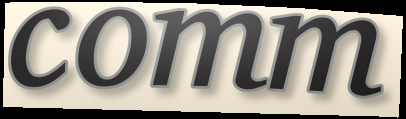
comm